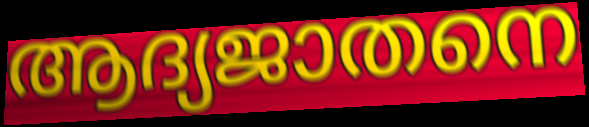
ആദ്യജാതനെ